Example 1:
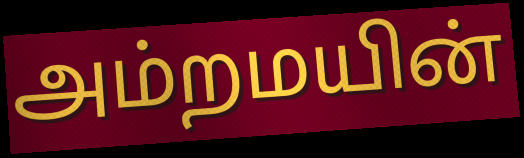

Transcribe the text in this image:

அம்றமயின்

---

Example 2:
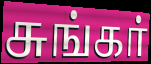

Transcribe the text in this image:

சுங்கர்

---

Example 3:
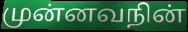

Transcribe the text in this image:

முன்னவநின்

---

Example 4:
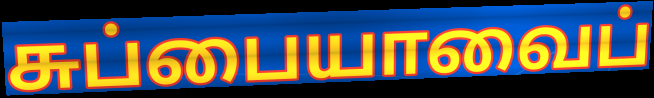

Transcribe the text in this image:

சுப்பையாவைப்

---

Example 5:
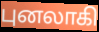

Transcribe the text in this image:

புனலாகி